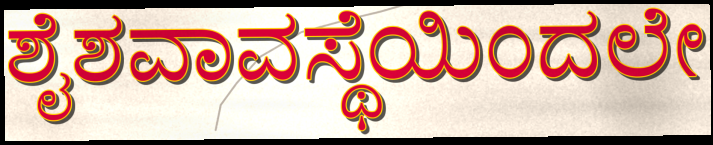
ಶೈಶವಾವಸ್ಥೆಯಿಂದಲೇ